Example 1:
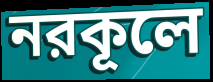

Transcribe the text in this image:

নরকূলে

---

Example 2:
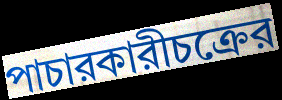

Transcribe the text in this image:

পাচারকারীচক্রের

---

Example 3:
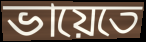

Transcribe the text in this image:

ভায়েতে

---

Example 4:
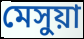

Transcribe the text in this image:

মেসুয়া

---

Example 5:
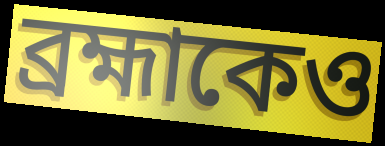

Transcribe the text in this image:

ব্রহ্মাকেও